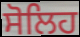
ਸੋਲਿਹ